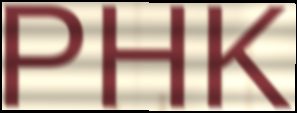
PHK